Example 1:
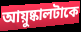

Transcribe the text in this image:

আয়ুষ্কালটাকে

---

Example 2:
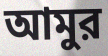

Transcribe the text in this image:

আমুর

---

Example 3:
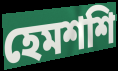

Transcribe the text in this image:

হেমশশি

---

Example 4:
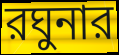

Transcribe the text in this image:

রঘুনার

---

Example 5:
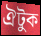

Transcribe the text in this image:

ঐটুক